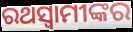
ରଥସ୍ୱାମୀଙ୍କର